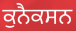
ਕੁਨੈਕਸਨ